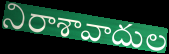
నిరాశావాదుల